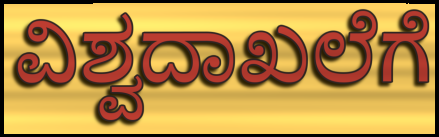
ವಿಶ್ವದಾಖಲೆಗೆ